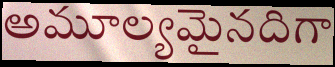
అమూల్యమైనదిగా